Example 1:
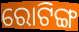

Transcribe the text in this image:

ରୋଟିଙ୍ଗ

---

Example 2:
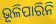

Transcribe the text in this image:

ଭୂଳିପାରିନି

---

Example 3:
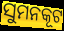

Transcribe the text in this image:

ସୁମନକୂଟ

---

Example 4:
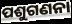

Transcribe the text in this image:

ପଶୁଗଣନା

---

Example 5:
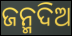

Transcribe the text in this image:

ଜନ୍ମଦିଅ